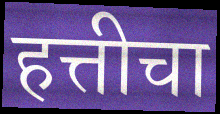
हत्तीचा